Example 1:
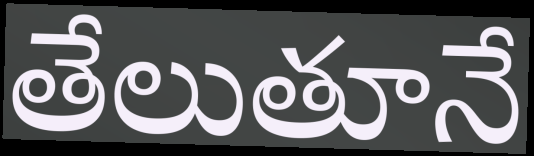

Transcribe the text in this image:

తేలుతూనే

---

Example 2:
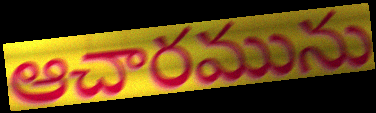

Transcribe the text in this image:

ఆచారమును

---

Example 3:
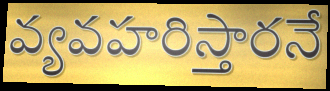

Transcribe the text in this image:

వ్యవహరిస్తారనే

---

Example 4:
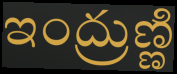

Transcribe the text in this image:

ఇంద్రుణ్ణి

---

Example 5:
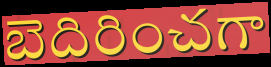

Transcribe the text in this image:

బెదిరించగా